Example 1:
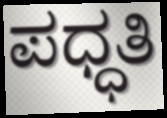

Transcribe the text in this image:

ಪಧ್ಧತಿ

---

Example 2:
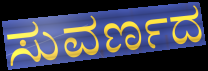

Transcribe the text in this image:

ಸುವರ್ಣದ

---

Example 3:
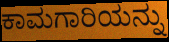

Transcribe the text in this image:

ಕಾಮಗಾರಿಯನ್ನು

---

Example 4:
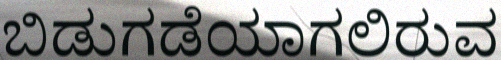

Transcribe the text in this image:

ಬಿಡುಗಡೆಯಾಗಲಿರುವ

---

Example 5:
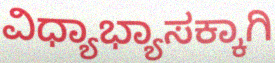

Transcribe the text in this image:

ವಿಧ್ಯಾಭ್ಯಾಸಕ್ಕಾಗಿ